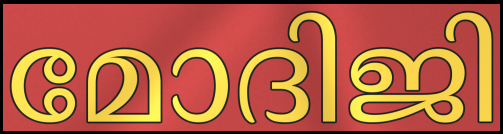
മോദിജി